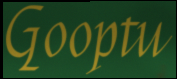
Gooptu